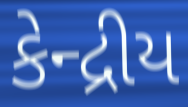
કેન્દ્રીય